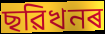
ছৱিখনৰ